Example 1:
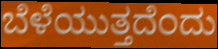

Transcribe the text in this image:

ಬೆಳೆಯುತ್ತದೆಂದು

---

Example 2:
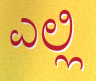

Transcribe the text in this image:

ಎಲ್ಲಿ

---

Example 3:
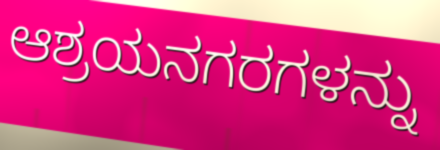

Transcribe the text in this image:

ಆಶ್ರಯನಗರಗಳನ್ನು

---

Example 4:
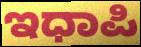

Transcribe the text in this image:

ಇಧಾಪಿ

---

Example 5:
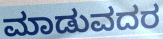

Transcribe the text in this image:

ಮಾಡುವದರ